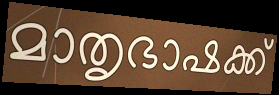
മാതൃഭാഷക്ക്